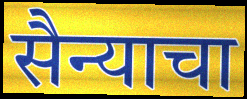
सैन्याचा